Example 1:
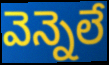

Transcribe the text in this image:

వెన్నెలే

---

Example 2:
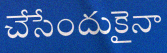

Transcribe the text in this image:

చేసేందుకైనా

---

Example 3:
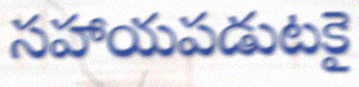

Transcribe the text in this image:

సహాయపడుటకై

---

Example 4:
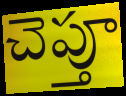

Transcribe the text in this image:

చెప్తూ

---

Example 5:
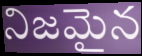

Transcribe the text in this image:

నిజమైన